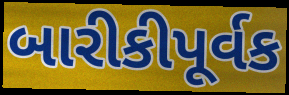
બારીકીપૂર્વક